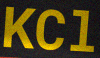
KCl